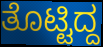
ತೊಟ್ಟಿದ್ದ